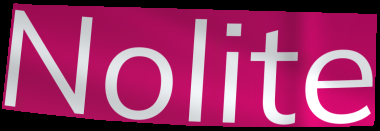
Nolite